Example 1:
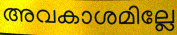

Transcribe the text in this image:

അവകാശമില്ലേ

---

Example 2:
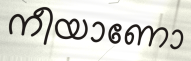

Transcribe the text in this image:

നീയാണോ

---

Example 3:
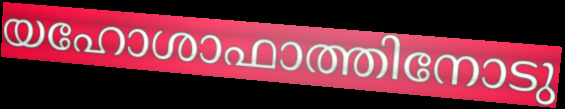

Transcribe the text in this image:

യഹോശാഫാത്തിനോടു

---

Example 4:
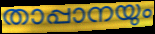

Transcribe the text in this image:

താപ്പാനയും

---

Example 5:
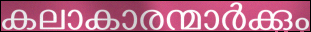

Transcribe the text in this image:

കലാകാരന്മാർക്കും